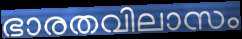
ഭാരതവിലാസം